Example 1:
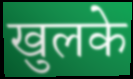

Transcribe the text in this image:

खुलके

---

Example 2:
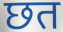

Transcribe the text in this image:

छत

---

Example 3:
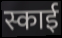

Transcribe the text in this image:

स्काई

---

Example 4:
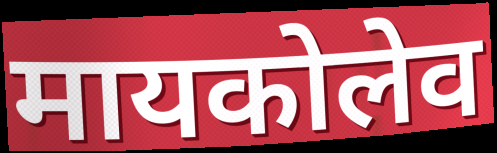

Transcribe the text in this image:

मायकोलेव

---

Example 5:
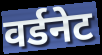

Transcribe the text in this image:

वर्डनेट